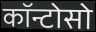
कॉन्टोसो